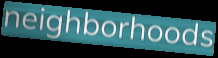
neighborhoods